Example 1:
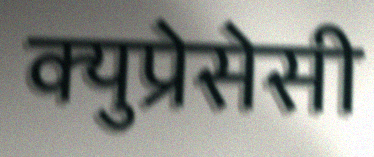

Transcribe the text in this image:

क्युप्रेसेसी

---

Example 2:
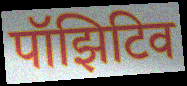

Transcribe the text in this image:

पॉझिटिव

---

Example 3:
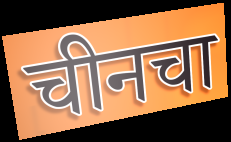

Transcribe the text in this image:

चीनचा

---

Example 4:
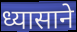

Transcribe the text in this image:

ध्यासाने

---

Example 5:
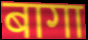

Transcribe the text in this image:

बागा